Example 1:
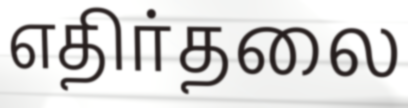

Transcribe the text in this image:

எதிர்தலை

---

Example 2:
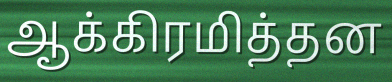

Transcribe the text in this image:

ஆக்கிரமித்தன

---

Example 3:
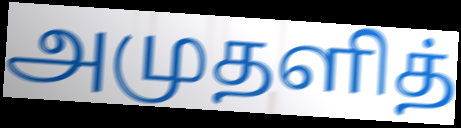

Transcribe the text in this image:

அமுதளித்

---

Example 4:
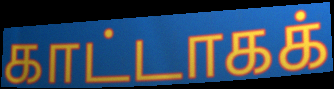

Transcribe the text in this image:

காட்டாகக்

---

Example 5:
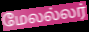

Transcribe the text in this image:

மேலல்லர்